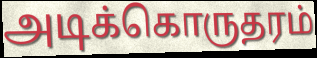
அடிக்கொருதரம்